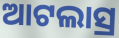
ଆଟଲାସ୍ର